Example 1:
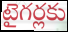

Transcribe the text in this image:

టైగర్లకు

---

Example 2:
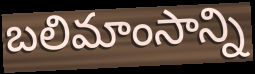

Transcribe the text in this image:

బలిమాంసాన్ని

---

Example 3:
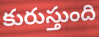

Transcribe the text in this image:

కురుస్తుంది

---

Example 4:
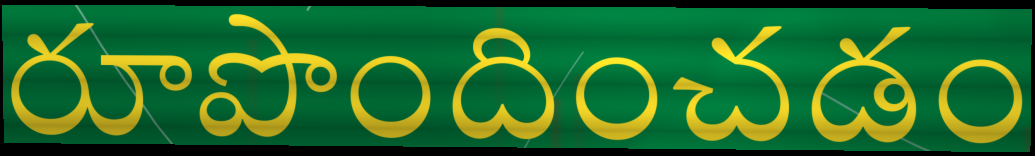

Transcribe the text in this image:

రూపొందించడం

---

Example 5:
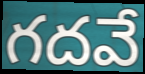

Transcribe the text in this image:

గదవే